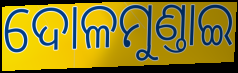
ଦୋଳମୁଣ୍ତାଇ